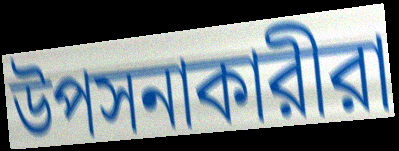
উপসনাকারীরা